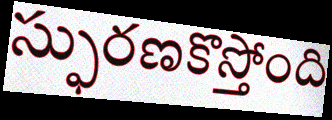
స్ఫురణకొస్తోంది